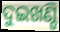
ଦୁଇଖଣ୍ଡି